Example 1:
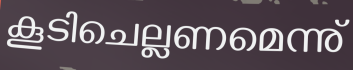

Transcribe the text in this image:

കൂടിചെല്ലണമെന്നു്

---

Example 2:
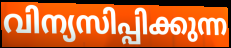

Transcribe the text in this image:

വിന്യസിപ്പിക്കുന്ന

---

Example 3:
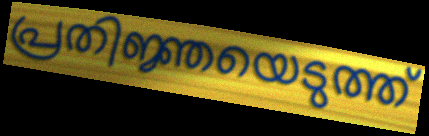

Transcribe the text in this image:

പ്രതിജ്ഞയെടുത്ത്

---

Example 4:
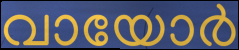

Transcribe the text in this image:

വായോർ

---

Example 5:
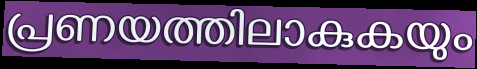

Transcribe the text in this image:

പ്രണയത്തിലാകുകയും